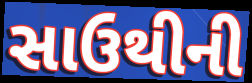
સાઉથીની